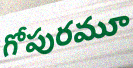
గోపురమూ